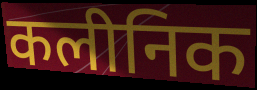
कलीनिक